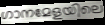
ഗാനമേളയിലെ